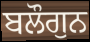
ਬਲੌਗੁਨ